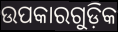
ଉପକାରଗୁଡ଼ିକ